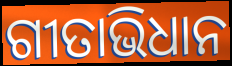
ଗୀତାଭିଧାନ